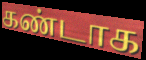
கண்டாக